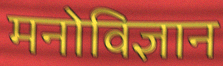
मनोविज्ञान